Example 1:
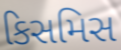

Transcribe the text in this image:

કિસમિસ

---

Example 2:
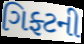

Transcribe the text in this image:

ગિફ્ટની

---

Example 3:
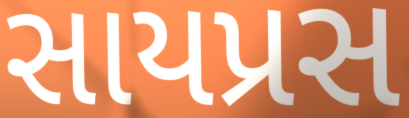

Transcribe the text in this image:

સાયપ્રસ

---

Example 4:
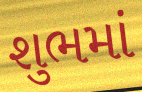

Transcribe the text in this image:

શુભમાં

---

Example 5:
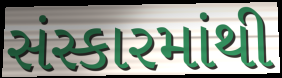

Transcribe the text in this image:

સંસ્કારમાંથી